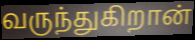
வருந்துகிறான்